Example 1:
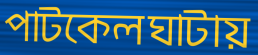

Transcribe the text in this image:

পাটকেলঘাটায়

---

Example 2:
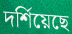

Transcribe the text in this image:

দর্শিয়েছে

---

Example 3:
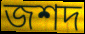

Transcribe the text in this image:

জশদ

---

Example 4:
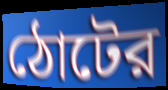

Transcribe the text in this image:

ঠোটের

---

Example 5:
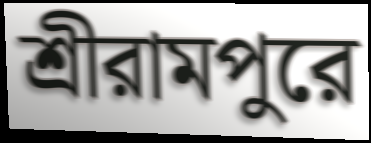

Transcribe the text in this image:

শ্রীরামপুরে